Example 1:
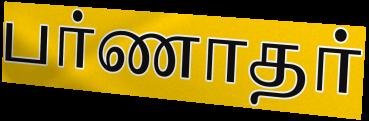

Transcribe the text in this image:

பர்ணாதர்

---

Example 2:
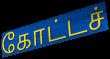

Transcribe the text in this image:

கோட்டச்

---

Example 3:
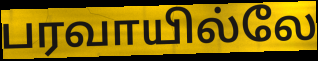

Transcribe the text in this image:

பரவாயில்லே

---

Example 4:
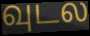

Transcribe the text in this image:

வுடல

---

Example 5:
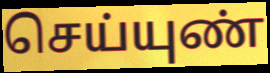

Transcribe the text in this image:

செய்யுண்